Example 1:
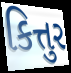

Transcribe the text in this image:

કિત્તુર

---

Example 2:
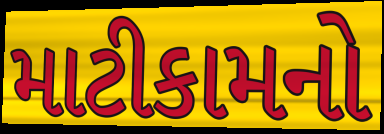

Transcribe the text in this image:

માટીકામનો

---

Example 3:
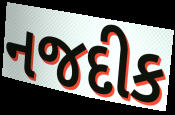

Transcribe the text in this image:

નજદીક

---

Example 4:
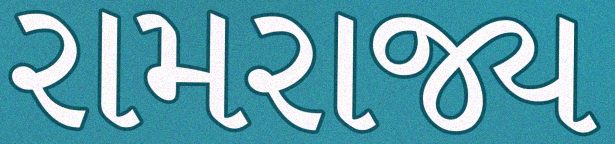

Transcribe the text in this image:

રામરાજ્ય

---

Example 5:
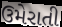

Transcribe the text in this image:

ઉમેરાતી